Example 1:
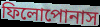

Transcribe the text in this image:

ফিলোপোনাস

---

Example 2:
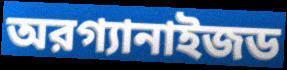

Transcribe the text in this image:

অরগ্যানাইজড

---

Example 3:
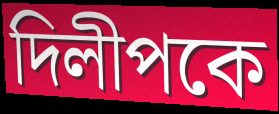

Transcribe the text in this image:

দিলীপকে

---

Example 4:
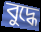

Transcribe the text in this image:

বুদ্ধে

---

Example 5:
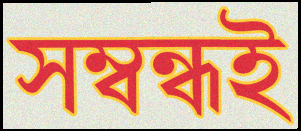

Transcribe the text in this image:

সম্বন্ধই